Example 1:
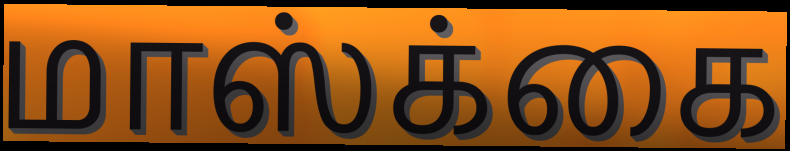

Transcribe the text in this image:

மாஸ்க்கை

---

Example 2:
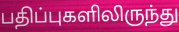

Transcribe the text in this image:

பதிப்புகளிலிருந்து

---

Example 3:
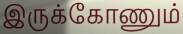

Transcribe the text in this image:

இருக்கோணும்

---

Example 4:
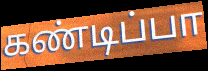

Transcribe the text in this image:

கண்டிப்பா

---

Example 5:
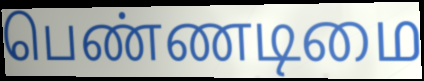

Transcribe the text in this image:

பெண்ணடிமை